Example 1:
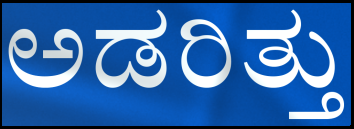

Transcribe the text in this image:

ಅಡರಿತ್ತು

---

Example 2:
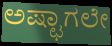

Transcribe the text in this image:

ಅಷ್ಟಾಗಲೇ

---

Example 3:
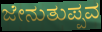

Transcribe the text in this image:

ಜೇನುತುಪ್ಪವ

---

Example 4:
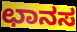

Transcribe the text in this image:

ಛಾನಸ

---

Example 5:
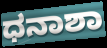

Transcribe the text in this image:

ಧನಾಶಾ